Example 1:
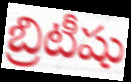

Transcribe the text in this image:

బ్రిటీషు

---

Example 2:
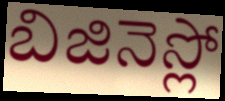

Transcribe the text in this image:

బిజినెస్లో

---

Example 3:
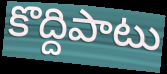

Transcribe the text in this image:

కొద్దిపాటు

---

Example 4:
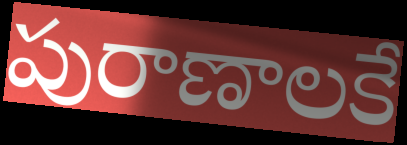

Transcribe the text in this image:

పురాణాలకే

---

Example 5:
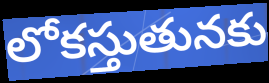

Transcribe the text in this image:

లోకస్తుతునకు